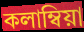
কলাম্বিয়া